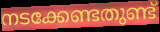
നടക്കേണ്ടതുണ്ട്